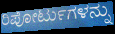
ರಿಪೋರ್ಟುಗಳನ್ನು